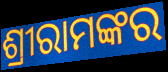
ଶ୍ରୀରାମଙ୍କର